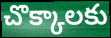
చొక్కాలకు